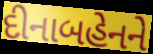
દીનાબહેનને